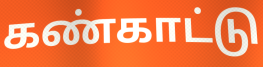
கண்காட்டு